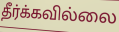
தீர்க்கவில்லை